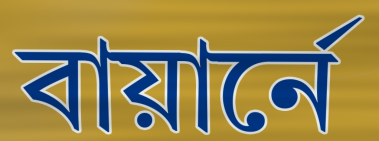
বায়ার্নে